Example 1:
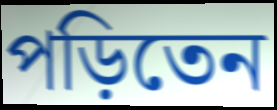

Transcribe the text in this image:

পড়িতেন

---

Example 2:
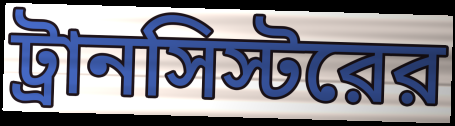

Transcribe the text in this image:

ট্রানসিস্টরের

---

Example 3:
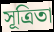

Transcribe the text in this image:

সূত্রিতা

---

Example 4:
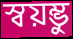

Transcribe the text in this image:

স্বয়ম্ভু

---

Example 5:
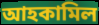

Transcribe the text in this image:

আহকামিল